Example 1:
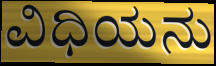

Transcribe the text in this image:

ವಿಧಿಯನು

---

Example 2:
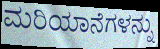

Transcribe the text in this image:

ಮರಿಯಾನೆಗಳನ್ನು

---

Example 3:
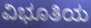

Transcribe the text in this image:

ವಿಭೂತಿಯ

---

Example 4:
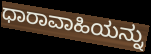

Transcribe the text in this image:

ಧಾರಾವಾಹಿಯನ್ನು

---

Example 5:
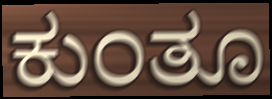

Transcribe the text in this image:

ಕುಂತೂ